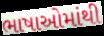
ભાષાઓમાંથી